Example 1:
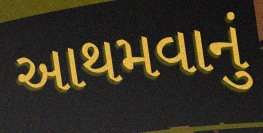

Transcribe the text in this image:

આથમવાનું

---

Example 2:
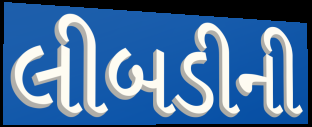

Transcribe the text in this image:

લીબડીની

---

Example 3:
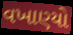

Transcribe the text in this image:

વખાણ્યો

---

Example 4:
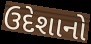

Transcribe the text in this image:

ઉદેશાનો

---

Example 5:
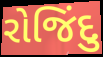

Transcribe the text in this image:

રોજિંદુ